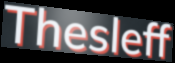
Thesleff